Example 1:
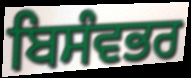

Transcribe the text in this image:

ਬਿਸੰਵਭਰ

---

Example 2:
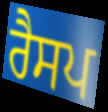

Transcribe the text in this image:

ਰੈਸਪ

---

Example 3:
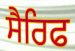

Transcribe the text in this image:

ਸੈਰਿਫ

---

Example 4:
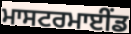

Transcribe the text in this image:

ਮਾਸਟਰਮਾਈਂਡ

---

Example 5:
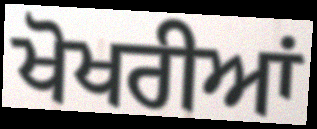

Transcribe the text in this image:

ਖੋਖਰੀਆਂ